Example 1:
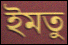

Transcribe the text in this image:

ইমতু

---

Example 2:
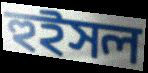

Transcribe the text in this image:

হুইসল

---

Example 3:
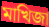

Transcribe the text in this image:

মাখিজা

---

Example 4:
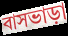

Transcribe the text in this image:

বাসভাড়া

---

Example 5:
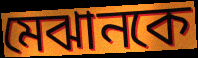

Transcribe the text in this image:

মেঝানকে